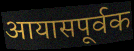
आयासपूर्वक